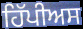
ਹਿੱਪੀਅਸ